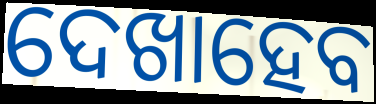
ଦେଖାହେବ